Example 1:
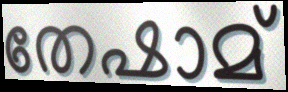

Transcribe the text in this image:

തേഷാമ്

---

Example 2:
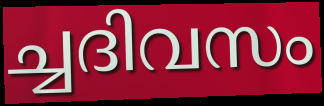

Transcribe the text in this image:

ച്ചദിവസം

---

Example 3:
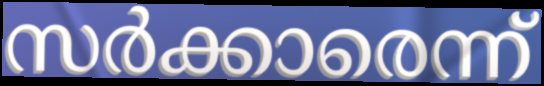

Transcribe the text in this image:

സർക്കാരെന്ന്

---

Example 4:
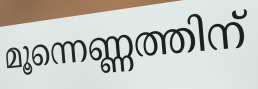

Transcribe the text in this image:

മൂന്നെണ്ണത്തിന്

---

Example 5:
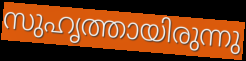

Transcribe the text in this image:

സുഹൃത്തായിരുന്നു